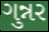
ગુન્નર